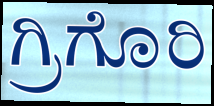
ಗ್ರಿಗೊರಿ